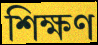
শিক্ষণ